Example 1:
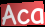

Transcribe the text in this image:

Aca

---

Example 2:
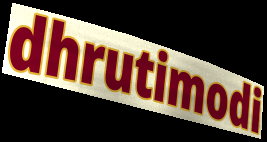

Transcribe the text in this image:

dhrutimodi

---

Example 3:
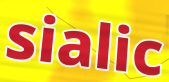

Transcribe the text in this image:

sialic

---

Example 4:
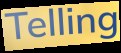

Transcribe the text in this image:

Telling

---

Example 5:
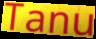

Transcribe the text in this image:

Tanu